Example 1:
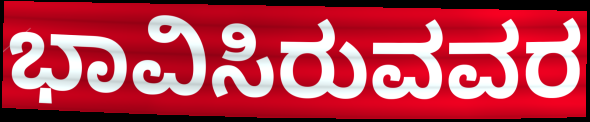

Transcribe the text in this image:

ಭಾವಿಸಿರುವವರ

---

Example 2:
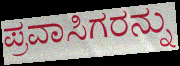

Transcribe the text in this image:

ಪ್ರವಾಸಿಗರನ್ನು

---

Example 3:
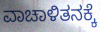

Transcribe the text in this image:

ವಾಚಾಳಿತನಕ್ಕೆ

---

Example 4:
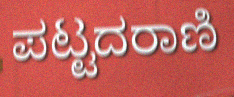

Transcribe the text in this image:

ಪಟ್ಟದರಾಣಿ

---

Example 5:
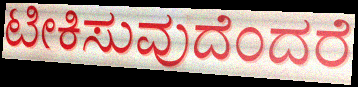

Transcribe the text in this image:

ಟೀಕಿಸುವುದೆಂದರೆ